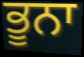
ਭੂਨਾ